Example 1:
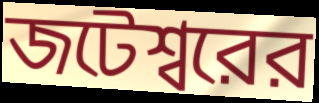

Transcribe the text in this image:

জটেশ্বরের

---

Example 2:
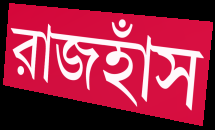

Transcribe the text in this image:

রাজহাঁস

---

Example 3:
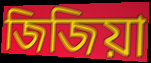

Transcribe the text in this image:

জিজিয়া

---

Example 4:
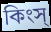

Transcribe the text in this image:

কিংস্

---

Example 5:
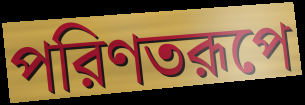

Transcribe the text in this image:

পরিণতরূপে